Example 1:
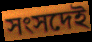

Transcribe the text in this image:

সংসদেই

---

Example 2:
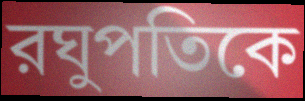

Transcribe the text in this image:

রঘুপতিকে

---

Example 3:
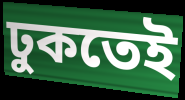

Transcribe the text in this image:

ঢুকতেই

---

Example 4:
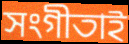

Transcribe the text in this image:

সংগীতাই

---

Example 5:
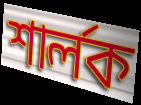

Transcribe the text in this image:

শার্লক